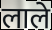
लाले